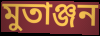
মুতাঞ্জন